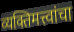
व्यक्तिमत्त्वांचा